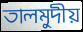
তালমুদীয়